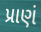
પ્રાણં